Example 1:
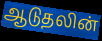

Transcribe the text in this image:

ஆடுதலின்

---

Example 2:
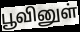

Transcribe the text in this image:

பூவினுள்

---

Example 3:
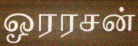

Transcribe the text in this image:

ஓரரசன்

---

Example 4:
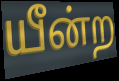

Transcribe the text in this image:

யீன்ற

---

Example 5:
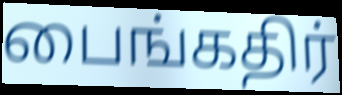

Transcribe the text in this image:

பைங்கதிர்